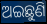
ଅଇଛୁଣି